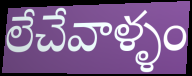
లేచేవాళ్ళం